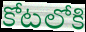
కోటలోకి